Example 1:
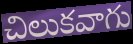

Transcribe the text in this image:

చిలుకవాగు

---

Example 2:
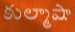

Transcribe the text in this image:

కుల్మాషా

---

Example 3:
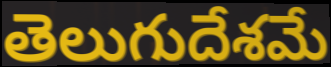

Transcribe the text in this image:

తెలుగుదేశమే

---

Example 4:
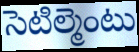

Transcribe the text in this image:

సెటిల్మెంటు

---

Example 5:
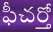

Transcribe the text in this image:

ఫీచర్తో